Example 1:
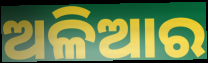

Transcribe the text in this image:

ଅଳିଆର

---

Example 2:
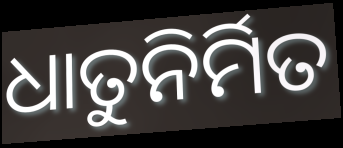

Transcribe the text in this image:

ଧାତୁନିର୍ମିତ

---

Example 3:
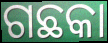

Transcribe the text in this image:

ଗଛକା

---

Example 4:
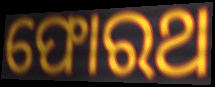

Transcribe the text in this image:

ଫୋରଥ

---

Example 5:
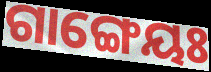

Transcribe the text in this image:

ଗାଙ୍ଗେୟଃ